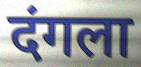
दंगला